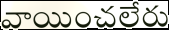
వాయించలేరు